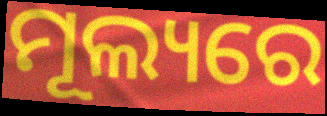
ମୂଲ୍ୟରେ